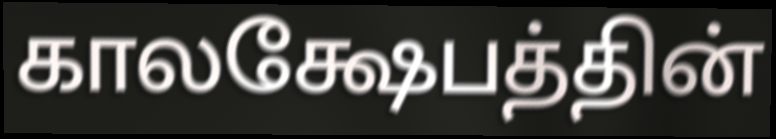
காலக்ஷேபத்தின்